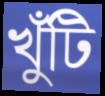
খুঁটি